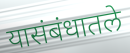
यासंबंधातले